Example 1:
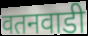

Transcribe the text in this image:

वतनवाडी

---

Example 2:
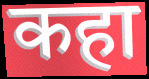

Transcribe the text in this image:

कहा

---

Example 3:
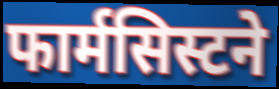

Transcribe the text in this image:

फार्मसिस्टने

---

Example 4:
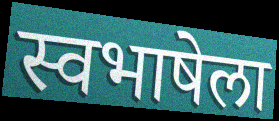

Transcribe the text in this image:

स्वभाषेला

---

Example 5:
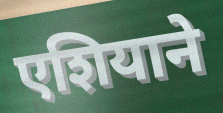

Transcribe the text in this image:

एशियाने